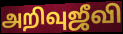
அறிவுஜீவி